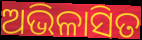
ଅଭିଳାସିତ